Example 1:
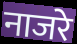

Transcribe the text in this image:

नाजरे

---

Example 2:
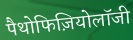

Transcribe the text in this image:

पैथोफिज़ियोलॉजी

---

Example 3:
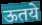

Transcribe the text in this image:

ऊतये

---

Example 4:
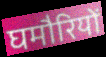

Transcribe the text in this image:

घमौरियों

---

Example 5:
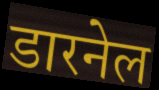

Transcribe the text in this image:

डारनेल